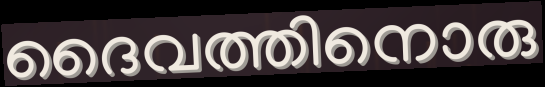
ദൈവത്തിനൊരു